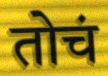
तोचं